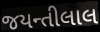
જયન્તીલાલ